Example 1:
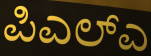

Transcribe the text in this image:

ಪಿಎಲ್ಎ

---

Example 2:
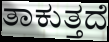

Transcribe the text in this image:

ತಾಕುತ್ತದೆ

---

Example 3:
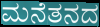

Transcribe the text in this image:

ಮನೆತನದ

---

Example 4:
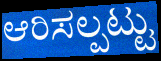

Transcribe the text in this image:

ಆರಿಸಲ್ಪಟ್ಟು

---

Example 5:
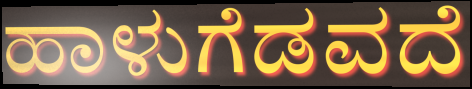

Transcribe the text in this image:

ಹಾಳುಗೆಡವದೆ